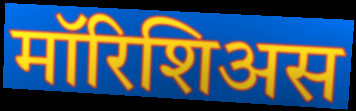
मॉरिशिअस